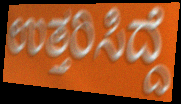
ಉತ್ತರಿಸಿದ್ದೆ